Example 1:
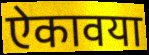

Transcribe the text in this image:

ऐकावया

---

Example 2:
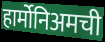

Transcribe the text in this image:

हार्मोनिअमची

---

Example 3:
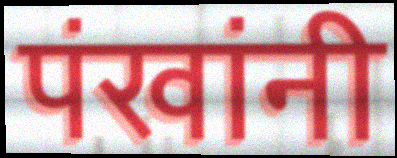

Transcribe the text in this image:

पंखांनी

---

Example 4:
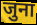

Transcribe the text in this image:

जुना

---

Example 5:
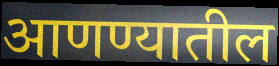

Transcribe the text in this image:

आणण्यातील